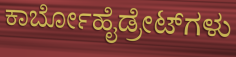
ಕಾರ್ಬೋಹೈಡ್ರೇಟ್‌ಗಳು